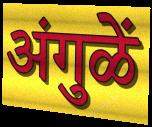
अंगुळें